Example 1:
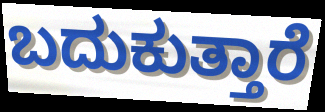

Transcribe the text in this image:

ಬದುಕುತ್ತಾರೆ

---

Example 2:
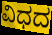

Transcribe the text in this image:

ವಿಧದ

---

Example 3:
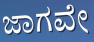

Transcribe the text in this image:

ಜಾಗವೇ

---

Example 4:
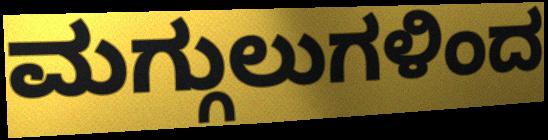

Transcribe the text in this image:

ಮಗ್ಗುಲುಗಳಿಂದ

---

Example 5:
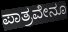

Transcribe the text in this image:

ಪಾತ್ರವೇನೂ